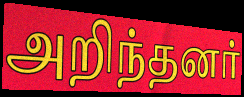
அறிந்தனர்